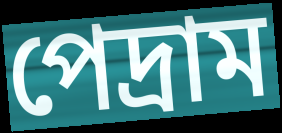
পেদ্রাম